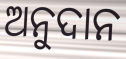
ଅନୁଦାନ